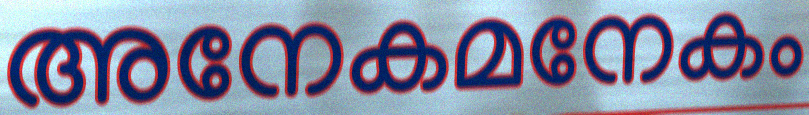
അനേകമനേകം